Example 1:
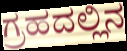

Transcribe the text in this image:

ಗ್ರಹದಲ್ಲಿನ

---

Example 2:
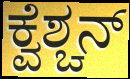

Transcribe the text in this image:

ಕ್ವೆಶ್ಚನ್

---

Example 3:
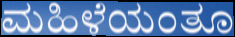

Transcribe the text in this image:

ಮಹಿಳೆಯಂತೂ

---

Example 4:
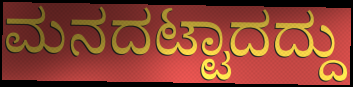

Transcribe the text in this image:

ಮನದಟ್ಟಾದದ್ದು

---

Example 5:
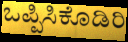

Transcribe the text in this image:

ಒಪ್ಪಿಸಿಕೊಡಿರಿ